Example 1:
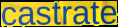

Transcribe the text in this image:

castrate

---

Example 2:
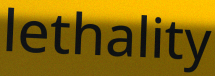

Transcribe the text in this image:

lethality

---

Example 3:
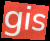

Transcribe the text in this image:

gis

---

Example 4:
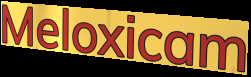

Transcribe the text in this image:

Meloxicam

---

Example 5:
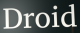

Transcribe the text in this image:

Droid